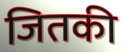
जितकी